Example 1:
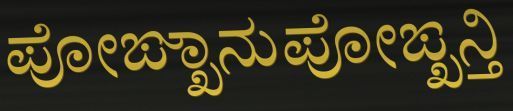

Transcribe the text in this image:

ಪೋಙ್ಖಾನುಪೋಙ್ಖನ್ತಿ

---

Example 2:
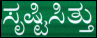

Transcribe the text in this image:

ಸೃಷ್ಟಿಸಿತ್ತು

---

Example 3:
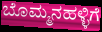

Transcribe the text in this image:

ಬೊಮ್ಮನಹಳ್ಳಿಗೆ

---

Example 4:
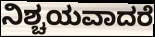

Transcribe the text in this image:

ನಿಶ್ಚಯವಾದರೆ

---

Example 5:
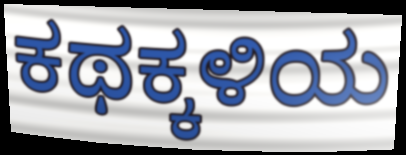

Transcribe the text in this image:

ಕಥಕ್ಕಳಿಯ